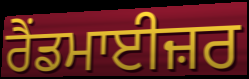
ਰੈਂਡਮਾਈਜ਼ਰ